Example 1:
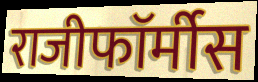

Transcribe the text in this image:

राजीफॉर्मीस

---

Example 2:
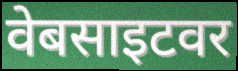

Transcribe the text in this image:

वेबसाइटवर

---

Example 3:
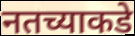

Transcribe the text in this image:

नतच्याकडे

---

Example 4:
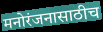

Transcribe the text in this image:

मनोरंजनासाठीच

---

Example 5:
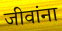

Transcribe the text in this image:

जीवांना